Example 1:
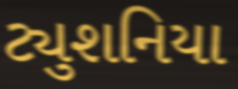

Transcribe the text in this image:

ટ્યુશનિયા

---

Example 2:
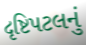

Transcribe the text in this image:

દૃષ્ટિપટલનું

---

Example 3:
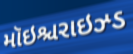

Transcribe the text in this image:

મૉઇશ્ચરાઇઝ્ડ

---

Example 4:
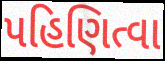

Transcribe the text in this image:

પહિણિત્વા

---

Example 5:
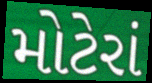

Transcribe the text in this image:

મોટેરાં